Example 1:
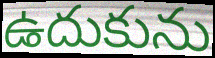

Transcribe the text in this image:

ఉదుకును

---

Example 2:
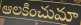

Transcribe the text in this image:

ఆలకించుమా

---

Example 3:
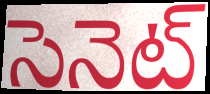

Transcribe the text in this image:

సెనెట్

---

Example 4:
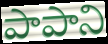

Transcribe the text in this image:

పాపాని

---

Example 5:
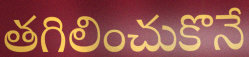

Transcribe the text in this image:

తగిలించుకొనే